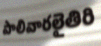
పాలివారలైతిరి